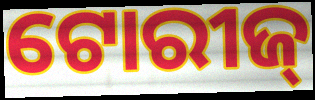
ଟୋରୀଜ୍